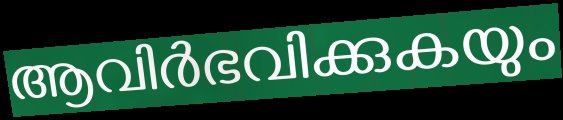
ആവിർഭവിക്കുകയും